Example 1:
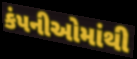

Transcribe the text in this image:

કંપનીઓમાંથી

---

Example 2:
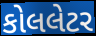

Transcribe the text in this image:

કોલલેટર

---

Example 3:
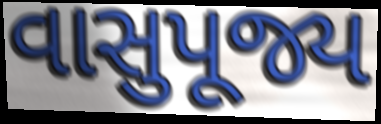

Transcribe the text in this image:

વાસુપૂજ્ય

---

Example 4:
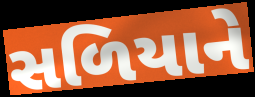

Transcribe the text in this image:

સળિયાને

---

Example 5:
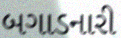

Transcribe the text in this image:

બગાડનારી